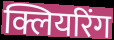
क्लियरिंग